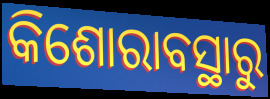
କିଶୋରାବସ୍ଥାରୁ